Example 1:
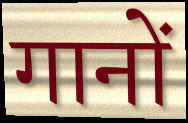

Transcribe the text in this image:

गानों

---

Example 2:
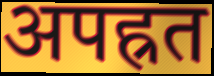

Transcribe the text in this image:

अपह्रत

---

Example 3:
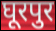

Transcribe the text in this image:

घूरपुर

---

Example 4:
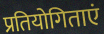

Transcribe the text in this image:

प्रतियोगिताएं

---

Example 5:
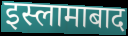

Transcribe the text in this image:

इस्लामाबाद